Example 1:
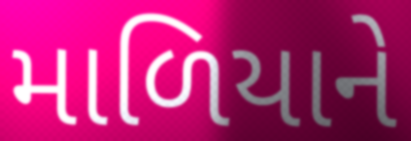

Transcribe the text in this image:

માળિયાને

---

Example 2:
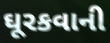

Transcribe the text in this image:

ઘૂરકવાની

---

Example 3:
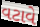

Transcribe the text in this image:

વટાવે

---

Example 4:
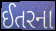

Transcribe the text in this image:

ઈતરના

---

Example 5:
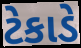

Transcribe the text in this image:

ટેકાડે